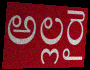
అల్లరై